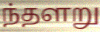
ந்தளறு